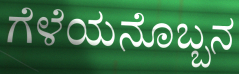
ಗೆಳೆಯನೊಬ್ಬನ